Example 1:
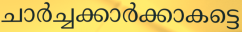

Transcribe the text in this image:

ചാർച്ചക്കാർക്കാകട്ടെ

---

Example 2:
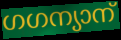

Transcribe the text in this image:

ഗഗന്യാന്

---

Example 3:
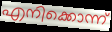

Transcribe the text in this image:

എനിക്കൊന്ന്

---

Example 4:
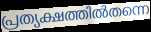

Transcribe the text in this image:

പ്രത്യക്ഷത്തിൽതന്നെ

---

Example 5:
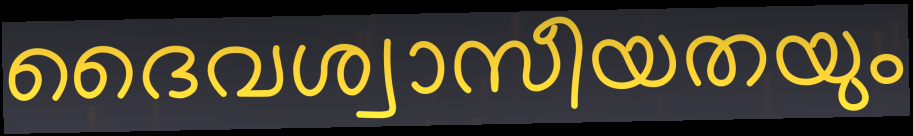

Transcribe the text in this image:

ദൈവശ്വാസീയതയും